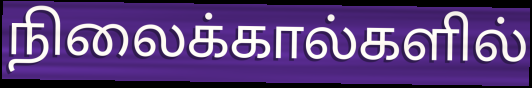
நிலைக்கால்களில்